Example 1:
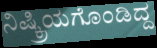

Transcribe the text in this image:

ನಿಷ್ಕ್ರಿಯಗೊಂಡಿದ್ದ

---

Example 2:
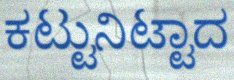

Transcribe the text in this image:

ಕಟ್ಟುನಿಟ್ಟಾದ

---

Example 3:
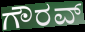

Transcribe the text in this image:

ಗೌರವ್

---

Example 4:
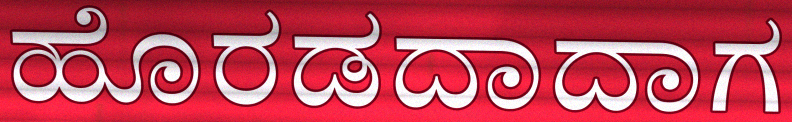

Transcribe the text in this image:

ಹೊರಡದಾದಾಗ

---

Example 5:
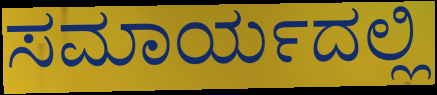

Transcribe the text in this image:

ಸಮಾರ್ಯದಲ್ಲಿ